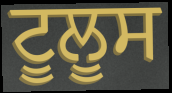
ਟੂਲੂਸ